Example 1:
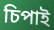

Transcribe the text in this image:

চিপাই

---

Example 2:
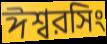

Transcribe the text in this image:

ঈশ্বরসিং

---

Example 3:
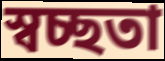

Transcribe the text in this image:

স্বচ্ছতা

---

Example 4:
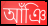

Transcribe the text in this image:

আঁঞি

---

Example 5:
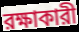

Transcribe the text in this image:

রক্ষাকারী